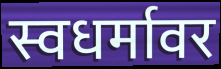
स्वधर्मावर